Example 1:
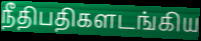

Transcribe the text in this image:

நீதிபதிகளடங்கிய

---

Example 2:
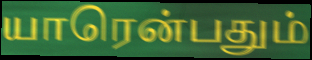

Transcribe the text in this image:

யாரென்பதும்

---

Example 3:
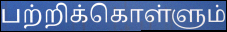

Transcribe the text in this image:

பற்றிக்கொள்ளும்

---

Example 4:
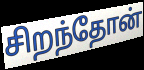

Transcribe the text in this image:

சிறந்தோன்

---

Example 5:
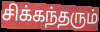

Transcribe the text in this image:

சிக்கந்தரும்